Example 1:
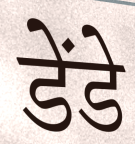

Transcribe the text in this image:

डेंडे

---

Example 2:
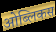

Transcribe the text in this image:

ओब्लिकस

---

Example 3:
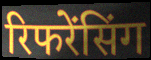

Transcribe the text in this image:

रिफरेंसिंग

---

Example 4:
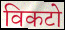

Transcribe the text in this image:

विकटो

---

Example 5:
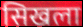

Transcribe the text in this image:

सिखला